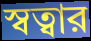
স্বত্বার